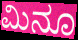
ಮಿನೂ